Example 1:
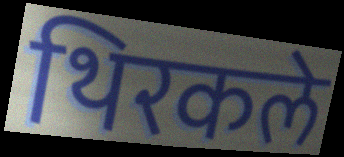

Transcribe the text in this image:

थिरकले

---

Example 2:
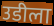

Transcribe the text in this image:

उडीला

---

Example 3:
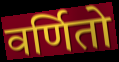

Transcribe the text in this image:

वर्णितो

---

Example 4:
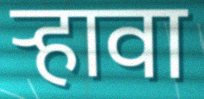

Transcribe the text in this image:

र्‍हावा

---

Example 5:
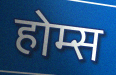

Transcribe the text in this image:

होम्स